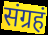
संग्रहं